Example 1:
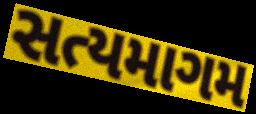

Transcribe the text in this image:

સત્યમાગમ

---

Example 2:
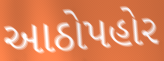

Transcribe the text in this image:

આઠોપહોર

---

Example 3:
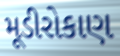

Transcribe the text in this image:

મૂડીરોકાણ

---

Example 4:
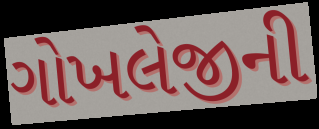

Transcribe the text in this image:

ગોખલેજીની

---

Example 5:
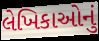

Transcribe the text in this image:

લેખિકાઓનું